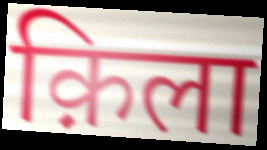
क़िला